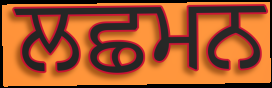
ਲਛਮਨ